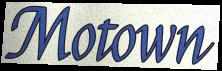
Motown